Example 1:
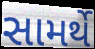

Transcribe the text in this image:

સામર્થે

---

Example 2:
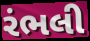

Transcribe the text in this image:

રંભલી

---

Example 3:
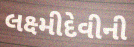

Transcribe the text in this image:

લક્ષ્મીદેવીની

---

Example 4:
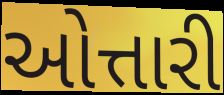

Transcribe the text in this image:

ઓત્તારી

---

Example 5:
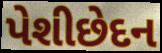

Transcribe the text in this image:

પેશીછેદન